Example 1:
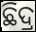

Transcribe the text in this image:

ଛିଦ୍ର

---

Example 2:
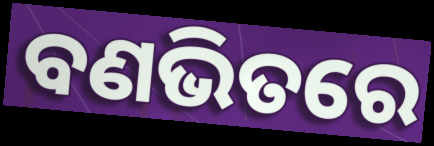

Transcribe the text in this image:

ବଣଭିତରେ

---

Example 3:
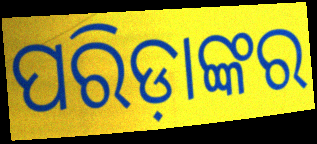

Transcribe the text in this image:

ପରିଡ଼ାଙ୍କର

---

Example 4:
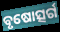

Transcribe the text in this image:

ବୃଷୋତ୍ସର୍ଗ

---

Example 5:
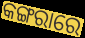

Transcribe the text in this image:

କଙ୍ଗରାରେ